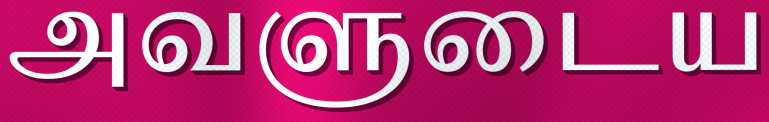
அவளுடைய